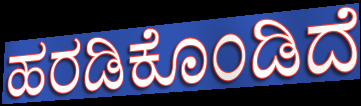
ಹರಡಿಕೊಂಡಿದೆ